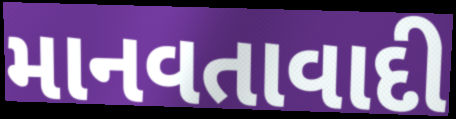
માનવતાવાદી